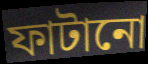
ফাটানো